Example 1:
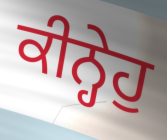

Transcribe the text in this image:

ਕੀਨ੍ਹੇਹੁ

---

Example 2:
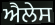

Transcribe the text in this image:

ਐਲੇਸ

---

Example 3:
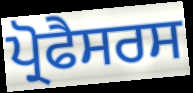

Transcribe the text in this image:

ਪ੍ਰੋਫੈਸਰਸ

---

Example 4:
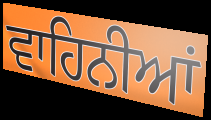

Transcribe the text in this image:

ਵਾਹਿਨੀਆਂ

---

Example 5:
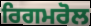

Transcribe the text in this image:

ਰਿਗਮਰੋਲ